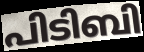
പിടിബി